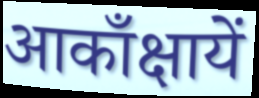
आकाँक्षायें